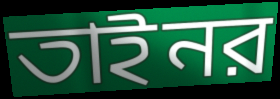
তাইনর